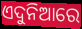
ଏଦୁନିଆରେ